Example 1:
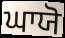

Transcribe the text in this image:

ਘਾਯੋ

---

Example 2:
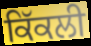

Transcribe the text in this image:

ਕਿੱਕਲੀ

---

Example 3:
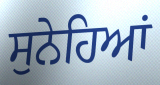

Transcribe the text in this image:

ਸੁਨੇਹਿਆਂ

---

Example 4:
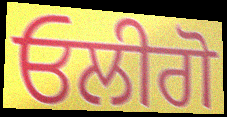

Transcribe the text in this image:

ਓਲੀਗੋ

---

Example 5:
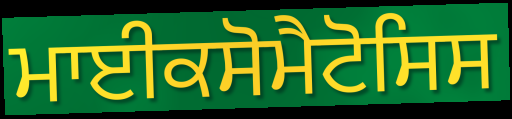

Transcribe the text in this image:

ਮਾਈਕਸੋਮੈਟੋਸਿਸ